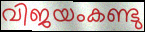
വിജയംകണ്ടു